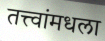
तत्त्वांमधला